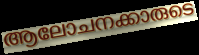
ആലോചനക്കാരുടെ